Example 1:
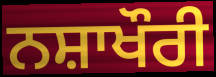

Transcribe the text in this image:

ਨਸ਼ਾਖੌਰੀ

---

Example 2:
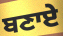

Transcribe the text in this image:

ਬਣਾਏ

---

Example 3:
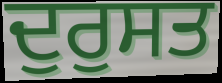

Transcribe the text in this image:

ਦੁਰੁਸਤ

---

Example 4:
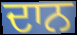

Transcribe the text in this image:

ਦਾਨ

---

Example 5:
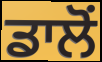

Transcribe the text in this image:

ਡਾਲੋਂ